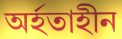
অৰ্হতাহীন